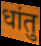
धांतु